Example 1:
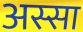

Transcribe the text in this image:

अस्सा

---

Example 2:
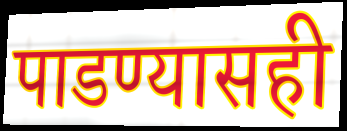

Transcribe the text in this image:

पाडण्यासही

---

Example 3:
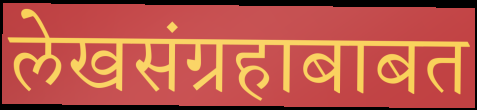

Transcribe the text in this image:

लेखसंग्रहाबाबत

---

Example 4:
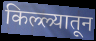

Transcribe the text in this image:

किल्ल्यातून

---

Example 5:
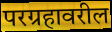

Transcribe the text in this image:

परग्रहावरील